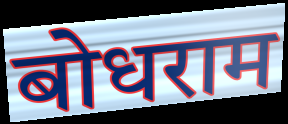
बोधराम